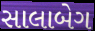
સાલાબેગ